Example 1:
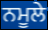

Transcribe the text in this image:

ਨਮੂਲੇ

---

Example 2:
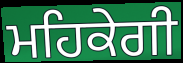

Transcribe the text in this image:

ਮਹਿਕੇਗੀ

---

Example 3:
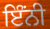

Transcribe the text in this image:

ਇੰਂਨੀ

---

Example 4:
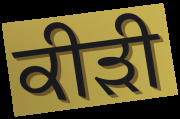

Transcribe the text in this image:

ਕੀੜੀ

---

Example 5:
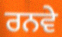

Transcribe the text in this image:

ਰਨਵੇ